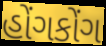
હોંગકોંગ